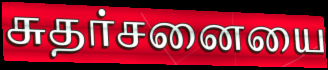
சுதர்சனையை